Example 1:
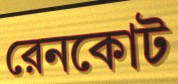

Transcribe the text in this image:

রেনকোট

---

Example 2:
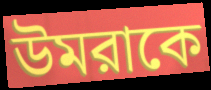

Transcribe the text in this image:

উমরাকে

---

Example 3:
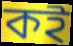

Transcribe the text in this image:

কই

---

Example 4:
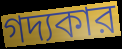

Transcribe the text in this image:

গদ্যকার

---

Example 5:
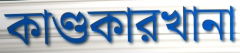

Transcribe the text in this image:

কাণ্ডকারখানা